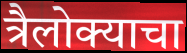
त्रैलोक्याचा